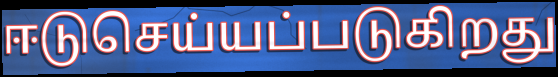
ஈடுசெய்யப்படுகிறது